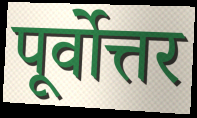
पूर्वोत्तर